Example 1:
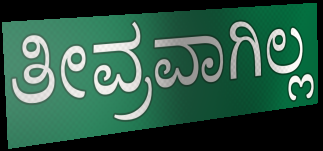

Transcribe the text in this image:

ತೀವ್ರವಾಗಿಲ್ಲ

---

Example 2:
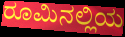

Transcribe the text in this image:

ರೂಮಿನಲ್ಲಿಯ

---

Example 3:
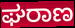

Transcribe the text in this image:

ಘರಾಣ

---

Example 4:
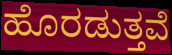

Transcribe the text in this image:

ಹೊರಡುತ್ತವೆ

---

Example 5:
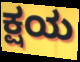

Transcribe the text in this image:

ಕ್ಷಯ